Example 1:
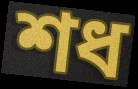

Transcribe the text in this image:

শধ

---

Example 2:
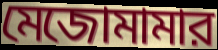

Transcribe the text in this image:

মেজোমামার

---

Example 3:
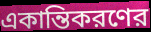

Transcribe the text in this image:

একান্তিকরণের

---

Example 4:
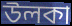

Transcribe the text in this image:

উলকা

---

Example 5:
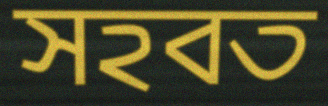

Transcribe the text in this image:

সহবত